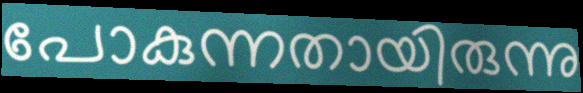
പോകുന്നതായിരുന്നു